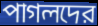
পাগলদের